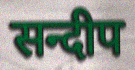
सन्दीप